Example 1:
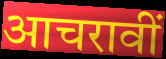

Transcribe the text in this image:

आचरावीं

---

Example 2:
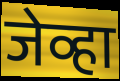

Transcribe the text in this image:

जेव्हा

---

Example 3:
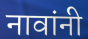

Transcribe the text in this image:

नावांनी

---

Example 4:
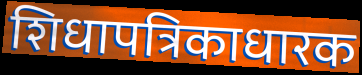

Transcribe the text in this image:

शिधापत्रिकाधारक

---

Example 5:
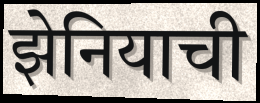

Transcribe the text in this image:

झेनियाची